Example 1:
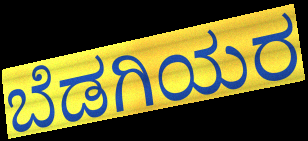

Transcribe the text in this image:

ಬೆಡಗಿಯರ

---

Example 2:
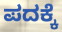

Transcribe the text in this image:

ಪದಕ್ಕೆ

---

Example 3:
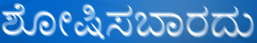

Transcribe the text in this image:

ಶೋಷಿಸಬಾರದು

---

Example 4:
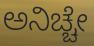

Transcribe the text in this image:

ಅನಿಚ್ಚೇ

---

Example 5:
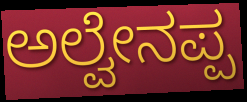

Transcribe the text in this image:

ಅಲ್ವೇನಪ್ಪ